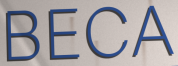
BECA